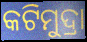
କଟିମୁଦ୍ରା